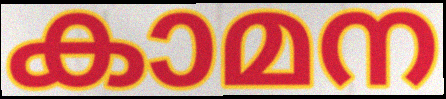
കാമന